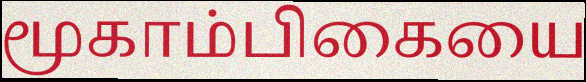
மூகாம்பிகையை